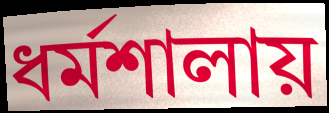
ধর্মশালায়